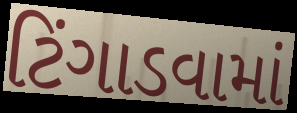
ટિંગાડવામાં